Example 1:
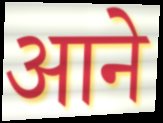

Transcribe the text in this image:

आने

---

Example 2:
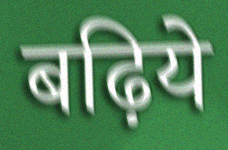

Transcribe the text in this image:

बढ़िये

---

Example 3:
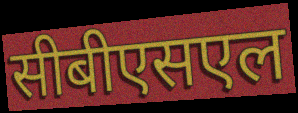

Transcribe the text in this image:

सीबीएसएल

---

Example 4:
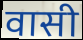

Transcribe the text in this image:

वासी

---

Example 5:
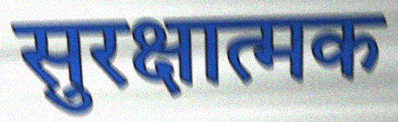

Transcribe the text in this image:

सुरक्षात्मक